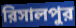
রিসালপুর